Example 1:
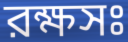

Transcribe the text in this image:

রক্ষসঃ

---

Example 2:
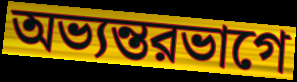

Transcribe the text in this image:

অভ্যন্তরভাগে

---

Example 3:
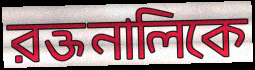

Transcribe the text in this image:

রক্তনালিকে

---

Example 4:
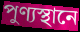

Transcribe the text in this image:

পুণ্যস্থানে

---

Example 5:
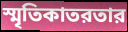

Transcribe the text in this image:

স্মৃতিকাতরতার